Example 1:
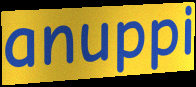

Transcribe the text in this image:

anuppi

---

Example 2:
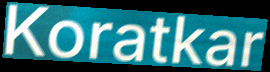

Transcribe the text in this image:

Koratkar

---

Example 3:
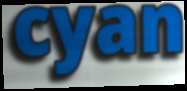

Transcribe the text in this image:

cyan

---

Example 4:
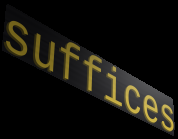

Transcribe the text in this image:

suffices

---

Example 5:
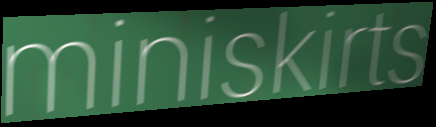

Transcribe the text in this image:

miniskirts